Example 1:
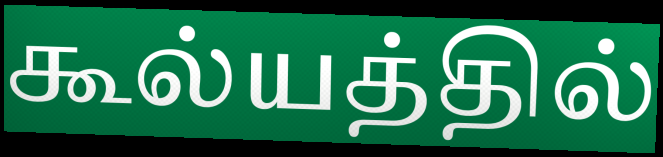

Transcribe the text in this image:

கூல்யத்தில்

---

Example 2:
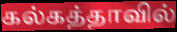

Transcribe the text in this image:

கல்கத்தாவில்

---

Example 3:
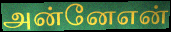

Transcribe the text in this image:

அன்னேஎன்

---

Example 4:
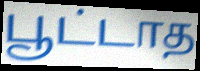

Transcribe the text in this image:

பூட்டாத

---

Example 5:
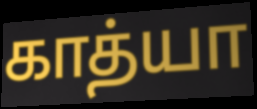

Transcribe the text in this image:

காத்யா